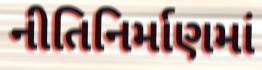
નીતિનિર્માણમાં